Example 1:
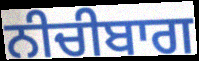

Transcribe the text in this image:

ਨੀਚੀਬਾਗ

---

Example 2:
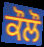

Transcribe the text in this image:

ਕੌਲੌ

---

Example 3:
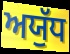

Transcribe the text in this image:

ਅਯੁੱਧ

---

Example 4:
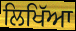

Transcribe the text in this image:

ਲਿਖਿੱਆ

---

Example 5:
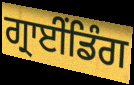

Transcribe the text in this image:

ਗ੍ਰਾਈਂਡਿੰਗ